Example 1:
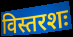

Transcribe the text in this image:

विस्तरशः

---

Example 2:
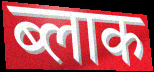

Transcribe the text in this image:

ब्लाक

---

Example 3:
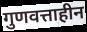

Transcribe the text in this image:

गुणवत्ताहीन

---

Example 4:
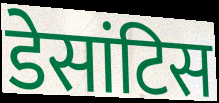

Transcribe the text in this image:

डेसांटिस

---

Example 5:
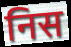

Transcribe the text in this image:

निस